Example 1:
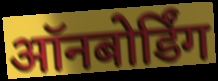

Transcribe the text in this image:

ऑनबोर्डिंग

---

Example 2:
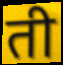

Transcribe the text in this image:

ती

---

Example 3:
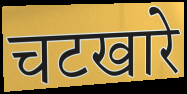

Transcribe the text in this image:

चटखारे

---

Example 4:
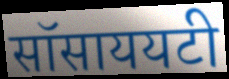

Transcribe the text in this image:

सॉसाययटी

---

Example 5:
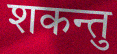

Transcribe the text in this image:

शकन्तु